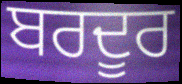
ਬਰਦੂਰ